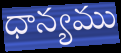
ధాన్యము